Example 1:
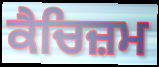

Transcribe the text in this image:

ਕੈਚਿਜ਼ਮ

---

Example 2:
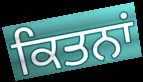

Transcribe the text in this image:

ਕਿਤਨਾਂ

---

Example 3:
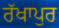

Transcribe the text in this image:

ਰੱਖਾਪੁਰ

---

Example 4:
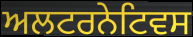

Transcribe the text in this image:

ਅਲਟਰਨੇਟਿਵਸ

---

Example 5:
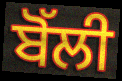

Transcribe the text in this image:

ਬੋੱਲੀ